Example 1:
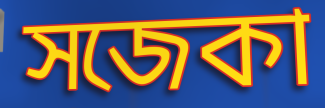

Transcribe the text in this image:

সজেকা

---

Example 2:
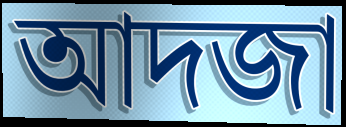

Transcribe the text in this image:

আদজা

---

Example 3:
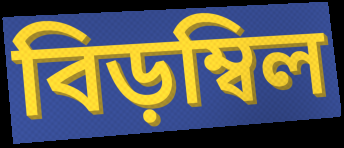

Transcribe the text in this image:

বিড়ম্বিল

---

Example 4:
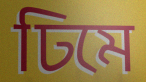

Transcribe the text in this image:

ঢিমে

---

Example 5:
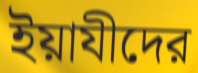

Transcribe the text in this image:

ইয়াযীদের